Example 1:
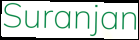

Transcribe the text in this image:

Suranjan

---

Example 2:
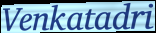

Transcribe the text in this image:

Venkatadri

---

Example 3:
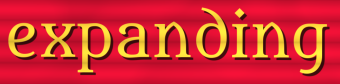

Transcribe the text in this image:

expanding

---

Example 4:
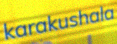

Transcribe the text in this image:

karakushala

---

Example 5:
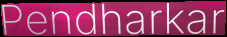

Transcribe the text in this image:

Pendharkar